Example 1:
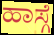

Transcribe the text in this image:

ಹಾಸ್ಗೆ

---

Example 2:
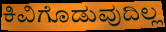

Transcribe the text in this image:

ಕಿವಿಗೊಡುವುದಿಲ್ಲ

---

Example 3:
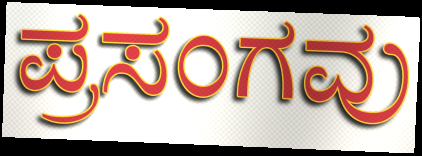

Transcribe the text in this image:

ಪ್ರಸಂಗವು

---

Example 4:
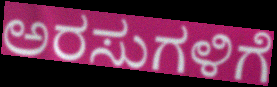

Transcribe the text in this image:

ಅರಸುಗಳಿಗೆ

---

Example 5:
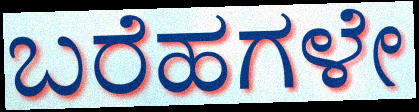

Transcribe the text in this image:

ಬರೆಹಗಳೇ